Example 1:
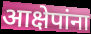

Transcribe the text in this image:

आक्षेपांना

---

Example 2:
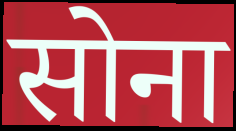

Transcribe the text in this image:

सोना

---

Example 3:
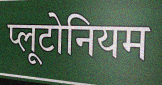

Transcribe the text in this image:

प्लूटोनियम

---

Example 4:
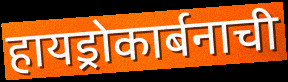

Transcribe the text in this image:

हायड्रोकार्बनाची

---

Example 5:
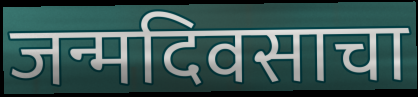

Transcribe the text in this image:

जन्मदिवसाचा